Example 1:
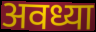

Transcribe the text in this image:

अवध्या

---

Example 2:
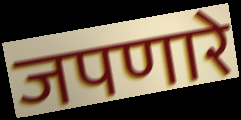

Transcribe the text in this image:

जपणारे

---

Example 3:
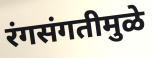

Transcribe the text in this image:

रंगसंगतीमुळे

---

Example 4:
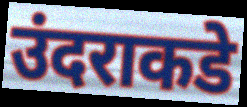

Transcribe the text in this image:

उंदराकडे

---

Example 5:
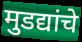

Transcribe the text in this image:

मुडद्यांचे